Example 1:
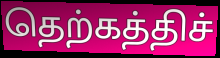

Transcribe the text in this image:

தெற்கத்திச்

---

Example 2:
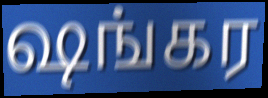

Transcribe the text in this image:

ஷங்கர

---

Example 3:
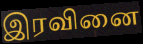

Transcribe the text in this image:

இரவினை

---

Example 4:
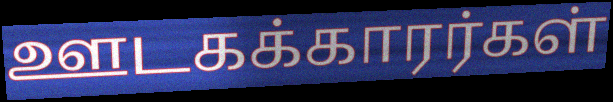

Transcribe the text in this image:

ஊடகக்காரர்கள்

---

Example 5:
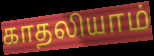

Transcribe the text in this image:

காதலியாம்